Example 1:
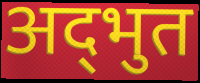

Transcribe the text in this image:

अद्भुत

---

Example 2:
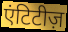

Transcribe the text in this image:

एंटिटीज़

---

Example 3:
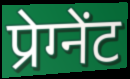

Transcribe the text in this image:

प्रेग्‍नेंट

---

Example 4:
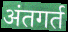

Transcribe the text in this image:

अंतगर्त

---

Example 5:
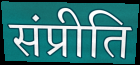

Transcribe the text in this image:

संप्रीति